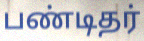
பண்டிதர்